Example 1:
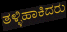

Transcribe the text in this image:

ತಳ್ಳಿಹಾಕಿದರು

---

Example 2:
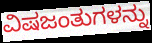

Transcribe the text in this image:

ವಿಷಜಂತುಗಳನ್ನು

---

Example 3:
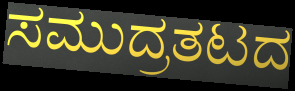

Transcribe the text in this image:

ಸಮುದ್ರತಟದ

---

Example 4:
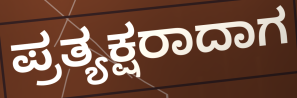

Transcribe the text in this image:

ಪ್ರತ್ಯಕ್ಷರಾದಾಗ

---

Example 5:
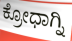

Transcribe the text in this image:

ಕ್ರೋಧಾಗ್ನಿ